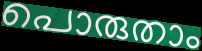
പൊരുതാം